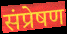
संप्रेषण